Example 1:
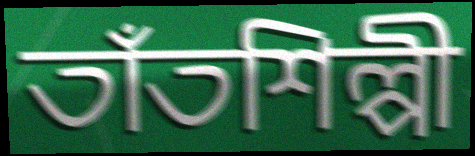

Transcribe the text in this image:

তাঁতশিল্পী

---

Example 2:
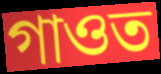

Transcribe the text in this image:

গাওত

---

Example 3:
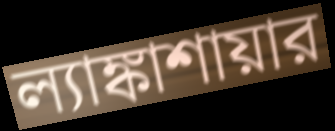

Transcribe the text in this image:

ল্যাঙ্কাশায়ার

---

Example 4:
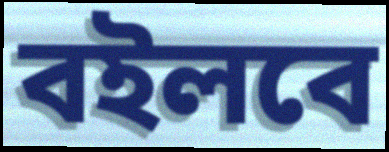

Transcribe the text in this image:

বইলবে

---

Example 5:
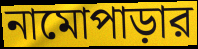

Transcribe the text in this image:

নামোপাড়ার